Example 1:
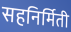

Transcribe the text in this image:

सहनिर्मिती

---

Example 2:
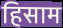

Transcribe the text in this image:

हिसाम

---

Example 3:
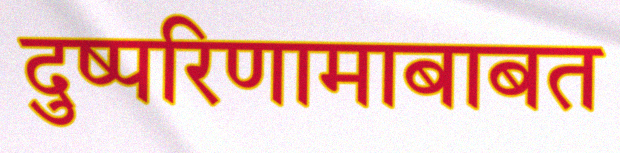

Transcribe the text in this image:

दुष्परिणामाबाबत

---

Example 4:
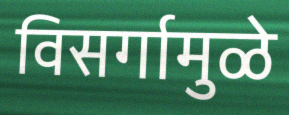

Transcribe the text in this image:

विसर्गामुळे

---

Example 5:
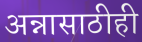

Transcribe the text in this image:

अन्नासाठीही